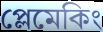
প্লেমেকিং